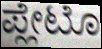
ಪ್ಲೇಟೊ